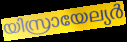
യിസ്രായേല്യർ